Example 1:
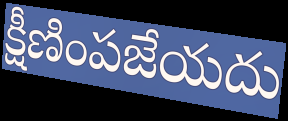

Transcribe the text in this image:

క్షీణింపజేయదు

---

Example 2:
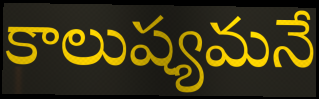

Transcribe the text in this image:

కాలుష్యమనే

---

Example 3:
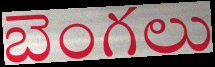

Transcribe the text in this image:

బెంగలు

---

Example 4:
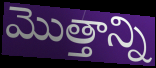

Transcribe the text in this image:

మొత్తాన్ని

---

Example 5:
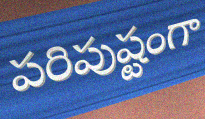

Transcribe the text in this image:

పరిపుష్టంగా